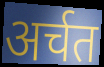
अर्चत